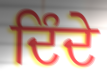
ਦਿੰਦੇ